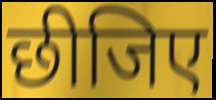
छीजिए